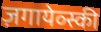
ज़गायेव्स्की